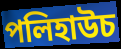
পলিহাউচ